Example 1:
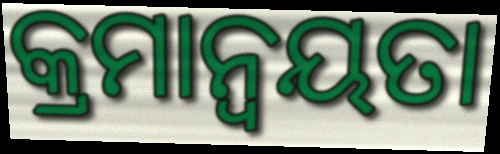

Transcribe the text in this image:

କ୍ରମାନ୍ବୟତା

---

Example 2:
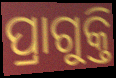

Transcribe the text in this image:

ପ୍ରାଗୁକ୍ତି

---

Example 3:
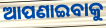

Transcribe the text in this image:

ଆପଣାଇବାକୁ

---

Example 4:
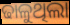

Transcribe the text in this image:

ଢାଳୁଥିଲା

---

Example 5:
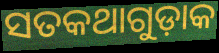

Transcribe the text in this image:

ସତକଥାଗୁଡ଼ାକ